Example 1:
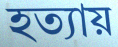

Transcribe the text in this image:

হত্যায়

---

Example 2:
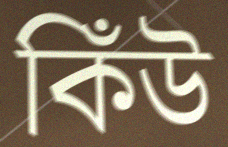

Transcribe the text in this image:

কিঁউ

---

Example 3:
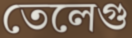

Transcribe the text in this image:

তেলেগু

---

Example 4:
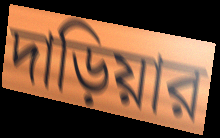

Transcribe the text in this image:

দাড়িয়ার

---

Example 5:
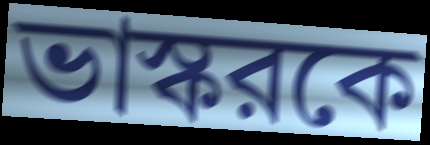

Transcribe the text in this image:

ভাস্করকে